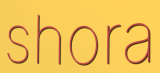
shora